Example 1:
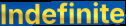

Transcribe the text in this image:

Indefinite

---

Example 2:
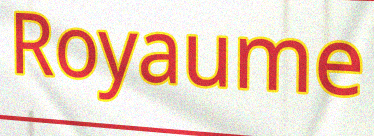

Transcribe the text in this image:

Royaume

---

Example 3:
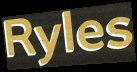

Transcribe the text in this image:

Ryles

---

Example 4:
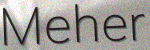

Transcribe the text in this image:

Meher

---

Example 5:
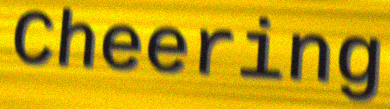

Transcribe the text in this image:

Cheering